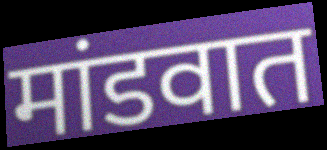
मांडवात